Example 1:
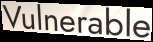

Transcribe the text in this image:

Vulnerable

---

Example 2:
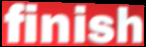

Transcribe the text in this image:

finish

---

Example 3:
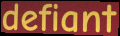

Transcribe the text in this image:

defiant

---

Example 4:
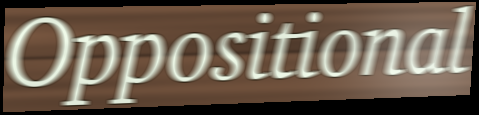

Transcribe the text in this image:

Oppositional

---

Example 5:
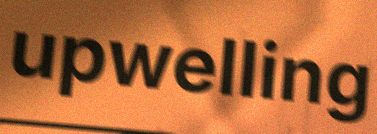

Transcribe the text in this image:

upwelling